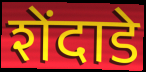
शेंदाडे